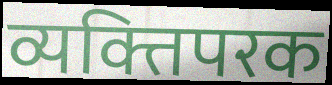
व्यक्तिपरक